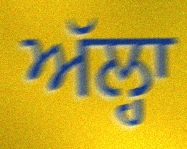
ਅੱਲ੍ਹਾ